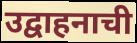
उद्वाहनाची